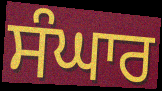
ਸੰਘਾਰ